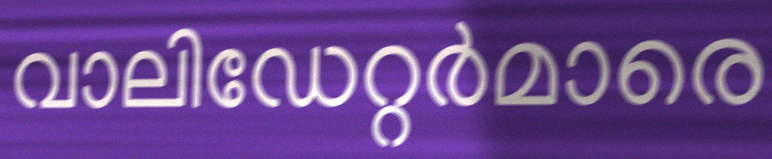
വാലിഡേറ്റർമാരെ